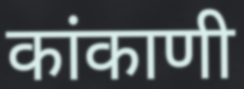
कांकाणी